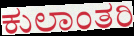
ಕುಲಾಂತರಿ